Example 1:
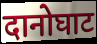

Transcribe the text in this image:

दानोघाट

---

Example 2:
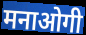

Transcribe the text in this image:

मनाओगी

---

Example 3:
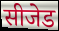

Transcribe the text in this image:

सीजेड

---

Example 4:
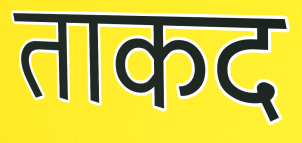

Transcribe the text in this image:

ताकद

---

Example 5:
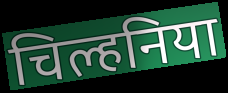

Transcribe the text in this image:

चिल्हनिया